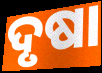
ଦୃଷା